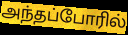
அந்தப்போரில்